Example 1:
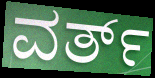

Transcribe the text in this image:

ವರ್ತ್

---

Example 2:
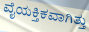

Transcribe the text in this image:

ವೈಯಕ್ತಿಕವಾಗಿತ್ತು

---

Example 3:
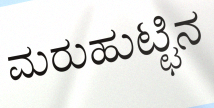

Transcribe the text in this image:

ಮರುಹುಟ್ಟಿನ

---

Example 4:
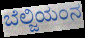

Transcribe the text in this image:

ಬೆಲ್ಜಿಯಂನ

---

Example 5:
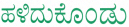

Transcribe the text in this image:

ಹಳಿದುಕೊಂಡು